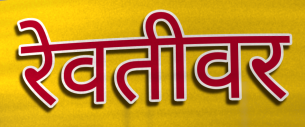
रेवतीवर